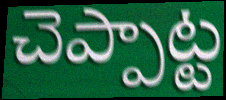
చెప్పాట్ట